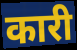
कारी